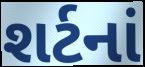
શર્ટનાં